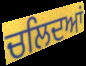
ਚਲਿਦਆਂ